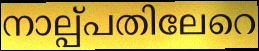
നാല്പ്പതിലേറെ